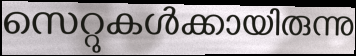
സെറ്റുകൾക്കായിരുന്നു